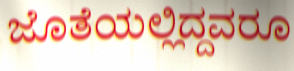
ಜೊತೆಯಲ್ಲಿದ್ದವರೂ